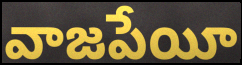
వాజపేయీ